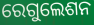
ରେଗୁଲେଶନ